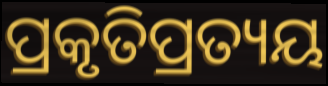
ପ୍ରକୃତିପ୍ରତ୍ୟୟ